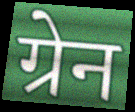
ग्रेन